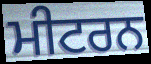
ਮੀਟਰਨ